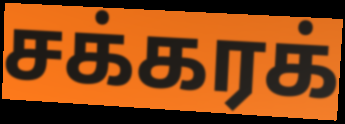
சக்கரக்